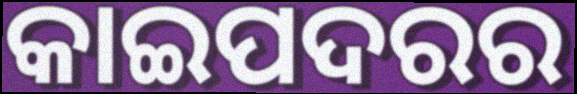
କାଇପଦରର